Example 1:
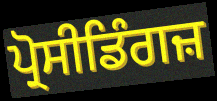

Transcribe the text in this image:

ਪ੍ਰੋਸੀਡਿੰਗਜ਼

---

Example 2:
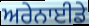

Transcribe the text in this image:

ਅਰੇਨਾਈਡੇ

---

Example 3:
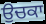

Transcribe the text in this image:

ਉਚਕਾ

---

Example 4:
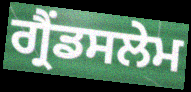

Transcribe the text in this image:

ਗ੍ਰੈਂਡਸਲੇਮ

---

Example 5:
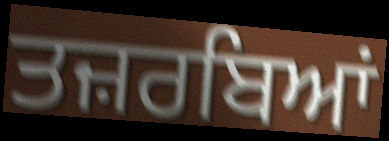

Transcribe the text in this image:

ਤਜ਼ਰਬਿਆਂ